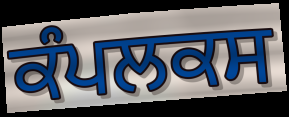
ਕੰਪਲਕਸ